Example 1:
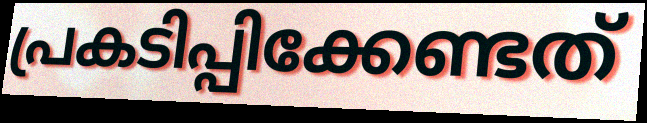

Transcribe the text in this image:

പ്രകടിപ്പിക്കേണ്ടത്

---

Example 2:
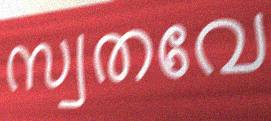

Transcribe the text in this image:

സ്വതവേ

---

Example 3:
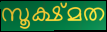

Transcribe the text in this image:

സൂക്ഷ്മത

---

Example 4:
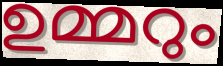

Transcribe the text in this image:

ഉമ്മറും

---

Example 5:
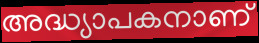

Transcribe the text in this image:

അദ്ധ്യാപകനാണ്